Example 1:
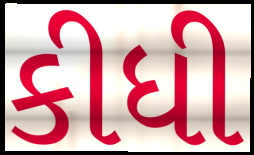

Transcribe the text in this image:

કીધી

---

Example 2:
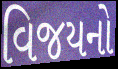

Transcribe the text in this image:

વિજયનો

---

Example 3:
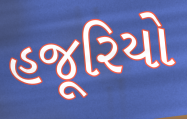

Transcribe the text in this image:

હજૂરિયો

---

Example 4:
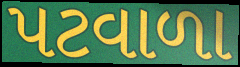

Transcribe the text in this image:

પટવાળા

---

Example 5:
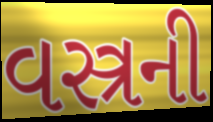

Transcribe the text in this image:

વસ્ત્રની